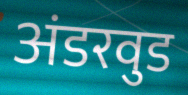
अंडरवुड